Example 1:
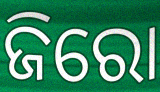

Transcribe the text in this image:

ଜିରୋ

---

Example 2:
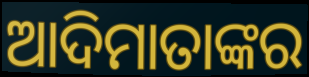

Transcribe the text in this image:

ଆଦିମାତାଙ୍କର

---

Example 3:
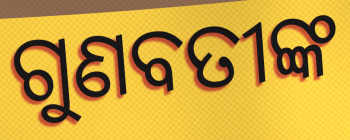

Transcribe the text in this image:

ଗୁଣବତୀଙ୍କ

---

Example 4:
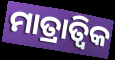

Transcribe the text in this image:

ମାତ୍ରାତ୍ଵିକ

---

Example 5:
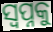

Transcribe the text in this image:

ସ୍ଵପ୍ନକୁ